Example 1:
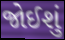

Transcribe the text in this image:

જોઈશું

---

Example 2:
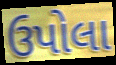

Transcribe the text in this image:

ઉપોલા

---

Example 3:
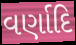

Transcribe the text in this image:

વર્ણાદિ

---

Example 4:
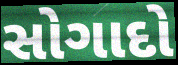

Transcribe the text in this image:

સોગાદો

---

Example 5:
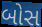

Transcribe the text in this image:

બોસ